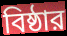
বিষ্ঠার